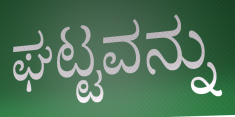
ಘಟ್ಟವನ್ನು